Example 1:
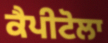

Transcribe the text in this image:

ਕੈਪੀਟੋਲਾ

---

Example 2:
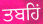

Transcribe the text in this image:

ਤਬਹਿਂ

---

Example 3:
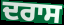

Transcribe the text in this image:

ਦਰਾਸ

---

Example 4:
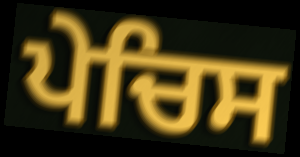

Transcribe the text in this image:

ਪੇਚਿਸ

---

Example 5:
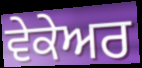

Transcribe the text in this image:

ਵੇਕੇਅਰ